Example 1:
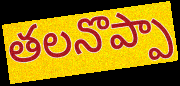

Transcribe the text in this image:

తలనొప్పా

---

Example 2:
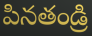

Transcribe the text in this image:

పినతండ్రి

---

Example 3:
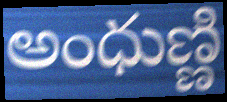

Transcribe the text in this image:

అంధుణ్ణి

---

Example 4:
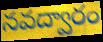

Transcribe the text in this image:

నవద్వారం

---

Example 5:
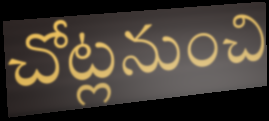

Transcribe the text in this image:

చోట్లనుంచి